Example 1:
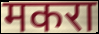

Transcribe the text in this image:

मकरा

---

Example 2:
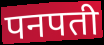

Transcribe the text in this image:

पनपती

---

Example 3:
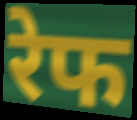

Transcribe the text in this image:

रेफ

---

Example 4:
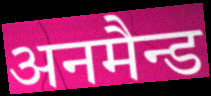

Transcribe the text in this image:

अनमैन्ड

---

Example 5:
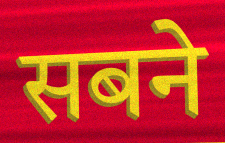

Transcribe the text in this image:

सबने